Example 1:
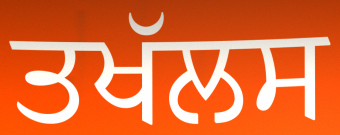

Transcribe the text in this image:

ਤਖੱਲਸ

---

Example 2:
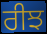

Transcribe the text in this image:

ਰੀਝ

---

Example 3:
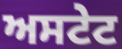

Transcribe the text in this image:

ਅਸਟੇਟ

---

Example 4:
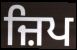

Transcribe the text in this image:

ਜ਼ਿਪ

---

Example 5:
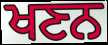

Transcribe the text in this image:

ਖਣਨ